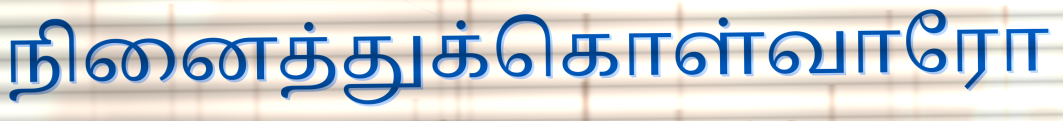
நினைத்துக்கொள்வாரோ